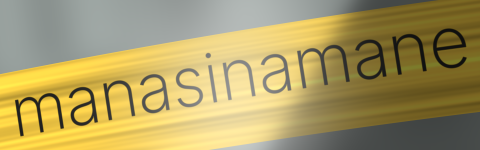
manasinamane